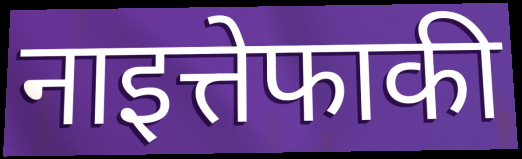
नाइत्तेफाकी